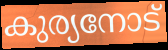
കുര്യനോട്